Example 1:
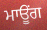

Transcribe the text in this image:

ਮਾਊਂਗ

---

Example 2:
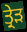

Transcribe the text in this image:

ਤ੍ਰੇੜ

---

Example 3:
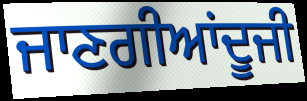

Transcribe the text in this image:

ਜਾਣਗੀਆਂਦੂਜੀ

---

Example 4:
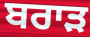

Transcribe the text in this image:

ਬਰਾਡ਼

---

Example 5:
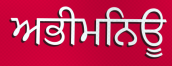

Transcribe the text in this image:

ਅਭੀਮਨਿਊ